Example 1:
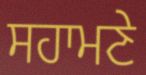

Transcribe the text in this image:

ਸਹਾਮਣੇ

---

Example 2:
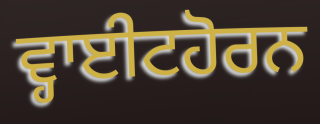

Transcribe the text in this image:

ਵ੍ਹਾਈਟਹੋਰਨ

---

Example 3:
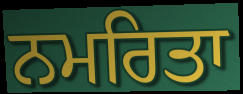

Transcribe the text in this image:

ਨਮਰਿਤਾ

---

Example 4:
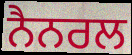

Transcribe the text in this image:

ਨੈਨਰਲ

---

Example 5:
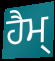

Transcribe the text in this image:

ਹੈਮ੍